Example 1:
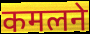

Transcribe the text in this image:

कमलने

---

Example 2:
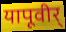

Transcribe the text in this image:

यापूवीर्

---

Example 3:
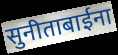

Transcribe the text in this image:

सुनीताबाईना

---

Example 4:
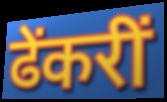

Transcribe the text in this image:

ढेंकरीं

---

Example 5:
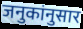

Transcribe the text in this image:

जनुकांनुसार